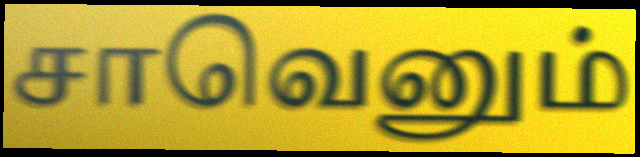
சாவெனும்